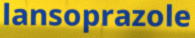
lansoprazole